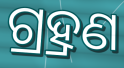
ଗ୍ର୍ରହଣ